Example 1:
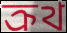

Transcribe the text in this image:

ক্রথ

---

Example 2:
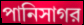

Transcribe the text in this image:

পানিসাগর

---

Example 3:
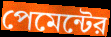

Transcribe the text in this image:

পেমেন্টের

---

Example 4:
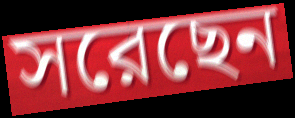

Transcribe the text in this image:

সরেছেন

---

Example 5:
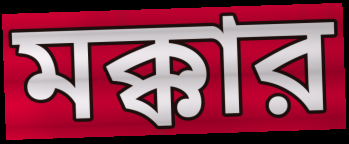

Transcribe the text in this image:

মক্কার